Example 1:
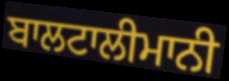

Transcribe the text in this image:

ਬਾਲਟਾਲੀਮਾਨੀ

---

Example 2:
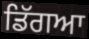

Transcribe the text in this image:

ਡਿੱਗਆ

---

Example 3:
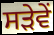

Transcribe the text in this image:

ਸੜੇਵੇਂ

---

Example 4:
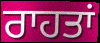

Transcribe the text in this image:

ਰਾਹਤਾਂ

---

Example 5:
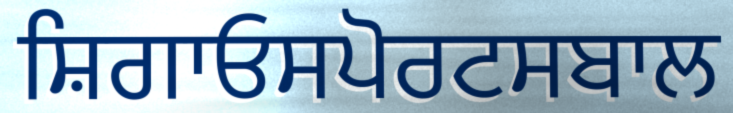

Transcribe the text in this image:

ਸ਼ਿਗਾਓਸਪੋਰਟਸਬਾਲ